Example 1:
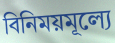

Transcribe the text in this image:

বিনিময়মূল্যে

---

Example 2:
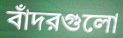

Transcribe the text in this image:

বাঁদরগুলো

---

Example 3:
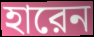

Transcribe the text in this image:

হারেন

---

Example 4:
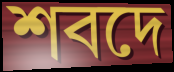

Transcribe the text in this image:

শবদে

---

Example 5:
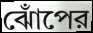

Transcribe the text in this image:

ঝোঁপের